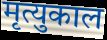
मृत्युकाल